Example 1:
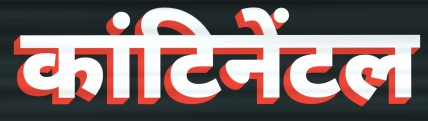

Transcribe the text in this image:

कांटिनेंटल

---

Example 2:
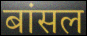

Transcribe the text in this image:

बांसल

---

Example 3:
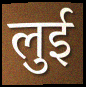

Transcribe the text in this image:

लुई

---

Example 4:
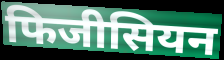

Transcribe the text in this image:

फिजीसियन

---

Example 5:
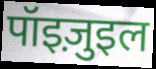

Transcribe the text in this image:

पॉइज़ुइल